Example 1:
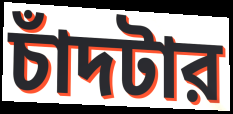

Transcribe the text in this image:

চাঁদটার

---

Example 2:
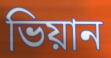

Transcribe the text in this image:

ভিয়ান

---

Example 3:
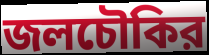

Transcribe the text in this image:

জলচৌকির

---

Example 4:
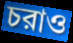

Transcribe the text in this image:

চরাও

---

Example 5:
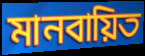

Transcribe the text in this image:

মানবায়িত